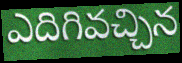
ఎదిగివచ్చిన